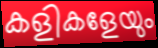
കളികളേയും